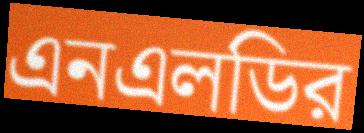
এনএলডির